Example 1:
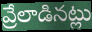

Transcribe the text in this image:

వ్రేలాడినట్లు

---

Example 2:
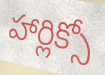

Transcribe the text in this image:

హార్లిక్సో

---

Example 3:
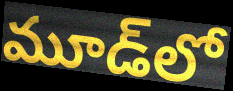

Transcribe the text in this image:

మూడ్‌లో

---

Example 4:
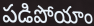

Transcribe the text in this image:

పడిపోయాం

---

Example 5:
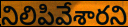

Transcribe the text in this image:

నిలిపివేశారని